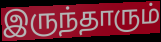
இருந்தாரும்